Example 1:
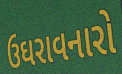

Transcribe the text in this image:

ઉઘરાવનારો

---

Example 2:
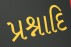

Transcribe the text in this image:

પ્રશ્નાદિ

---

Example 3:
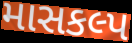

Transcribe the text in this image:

માસકલ્પ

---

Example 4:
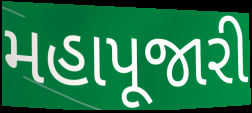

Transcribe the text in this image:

મહાપૂજારી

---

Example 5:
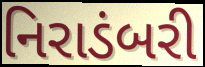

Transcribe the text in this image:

નિરાડંબરી